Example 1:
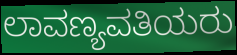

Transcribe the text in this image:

ಲಾವಣ್ಯವತಿಯರು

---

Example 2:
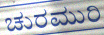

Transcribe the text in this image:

ಚುರಮುರಿ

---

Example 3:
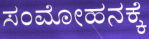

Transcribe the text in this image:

ಸಂಮೋಹನಕ್ಕೆ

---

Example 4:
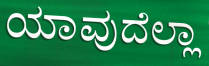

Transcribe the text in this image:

ಯಾವುದೆಲ್ಲಾ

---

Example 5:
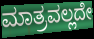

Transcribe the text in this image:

ಮಾತ್ರವಲ್ಲದೇ